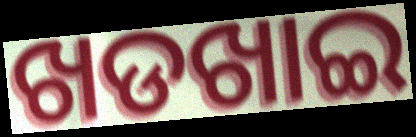
ଖଡଖାଇ